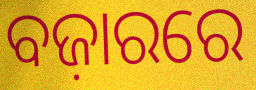
ବଜ଼ାରରେ